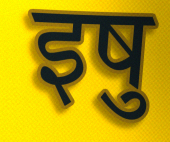
इषु